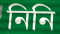
নিনি